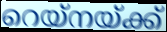
റെയ്നയ്ക്ക്